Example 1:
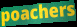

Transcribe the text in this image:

poachers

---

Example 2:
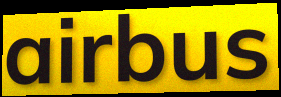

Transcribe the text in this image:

airbus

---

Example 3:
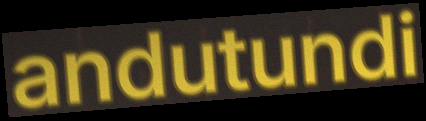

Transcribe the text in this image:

andutundi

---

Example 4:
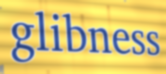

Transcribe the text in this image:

glibness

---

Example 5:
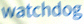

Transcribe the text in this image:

watchdog